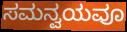
ಸಮನ್ವಯವೂ